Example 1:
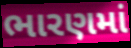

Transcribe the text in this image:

ભારણમાં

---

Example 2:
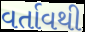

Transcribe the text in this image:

વર્તાવથી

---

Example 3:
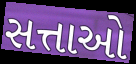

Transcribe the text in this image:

સત્તાઓ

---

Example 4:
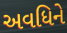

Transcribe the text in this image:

અવધિને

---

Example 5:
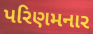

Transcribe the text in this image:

પરિણમનાર